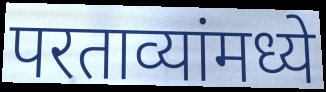
परताव्यांमध्ये